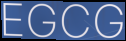
EGCG